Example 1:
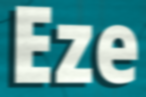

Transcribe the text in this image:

Eze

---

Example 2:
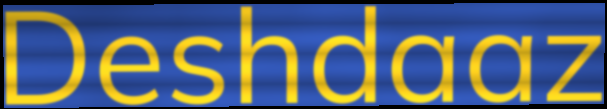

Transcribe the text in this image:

Deshdaaz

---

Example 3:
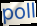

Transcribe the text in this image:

poll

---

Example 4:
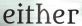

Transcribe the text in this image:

either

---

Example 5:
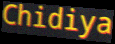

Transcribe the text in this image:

Chidiya